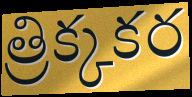
త్రిక్కకర